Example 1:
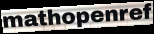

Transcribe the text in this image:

mathopenref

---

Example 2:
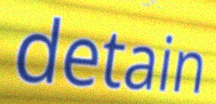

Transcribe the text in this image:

detain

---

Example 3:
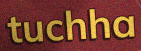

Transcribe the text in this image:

tuchha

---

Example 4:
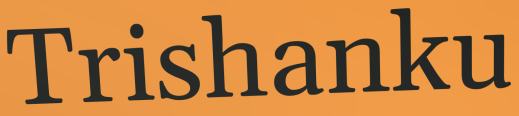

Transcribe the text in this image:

Trishanku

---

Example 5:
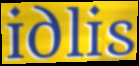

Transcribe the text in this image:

idlis